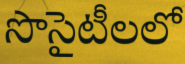
సొసైటీలలో